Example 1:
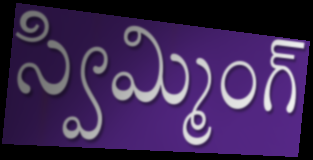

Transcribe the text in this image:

స్విమ్మింగ్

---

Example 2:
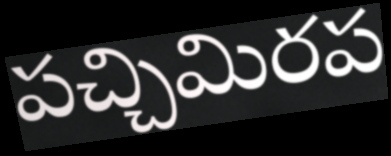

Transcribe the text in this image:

పచ్చిమిరప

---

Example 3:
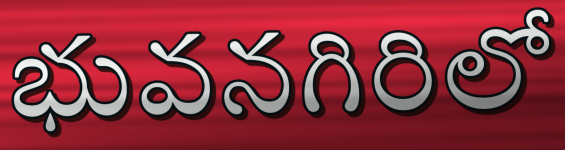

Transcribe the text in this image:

భువనగిరిలో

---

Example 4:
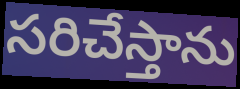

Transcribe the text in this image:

సరిచేస్తాను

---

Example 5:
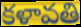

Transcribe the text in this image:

కళావతి